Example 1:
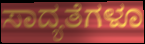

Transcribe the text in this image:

ಸಾದ್ಯತೆಗಳೂ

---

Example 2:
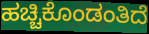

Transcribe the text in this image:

ಹಚ್ಚಿಕೊಂಡಂತಿದೆ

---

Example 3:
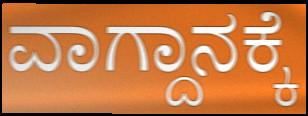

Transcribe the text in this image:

ವಾಗ್ದಾನಕ್ಕೆ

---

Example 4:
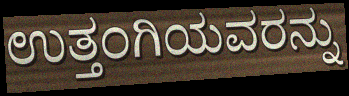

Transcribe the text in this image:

ಉತ್ತಂಗಿಯವರನ್ನು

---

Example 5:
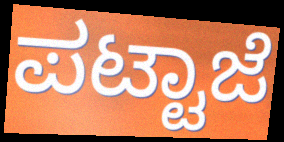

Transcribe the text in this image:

ಪಟ್ಟಾಜೆ